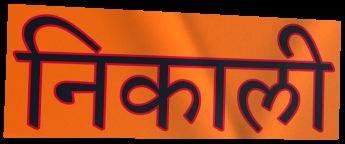
निकाली